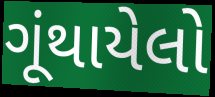
ગૂંથાયેલો